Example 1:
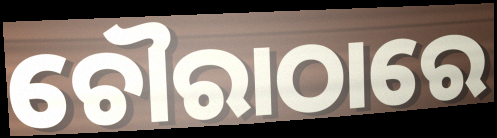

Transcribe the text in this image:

ଚୌରାଠାରେ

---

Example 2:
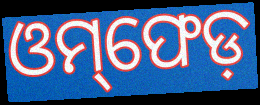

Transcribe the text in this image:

ଓମ୍‌ଫେଡ଼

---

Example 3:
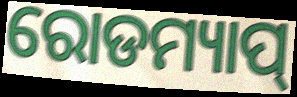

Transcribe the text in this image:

ରୋଡମ୍ୟାପ୍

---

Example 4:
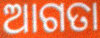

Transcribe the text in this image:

ଆଗତା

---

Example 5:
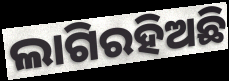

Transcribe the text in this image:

ଲାଗିରହିଅଛି